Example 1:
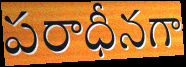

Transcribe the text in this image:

పరాధీనగా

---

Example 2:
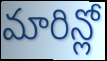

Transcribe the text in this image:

మారిన్లో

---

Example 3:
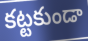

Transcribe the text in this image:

కట్టకుండా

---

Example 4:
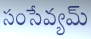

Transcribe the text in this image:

సంసేవ్యమ్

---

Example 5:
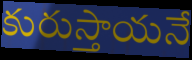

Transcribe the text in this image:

కురుస్తాయనే